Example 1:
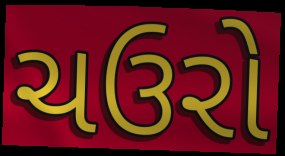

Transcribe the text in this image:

ચઉરો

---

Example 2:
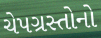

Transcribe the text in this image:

ચેપગ્રસ્તોનો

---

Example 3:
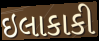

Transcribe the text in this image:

ઇલાકાકી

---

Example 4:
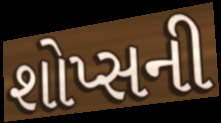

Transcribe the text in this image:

શોપ્સની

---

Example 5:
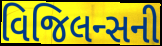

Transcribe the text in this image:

વિજિલન્સની